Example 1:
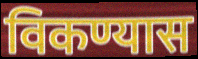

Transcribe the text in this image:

विकण्यास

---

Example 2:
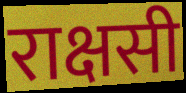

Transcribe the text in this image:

राक्षसी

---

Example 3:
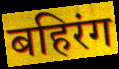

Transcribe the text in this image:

बहिरंग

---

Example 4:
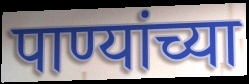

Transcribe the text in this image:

पाण्यांच्या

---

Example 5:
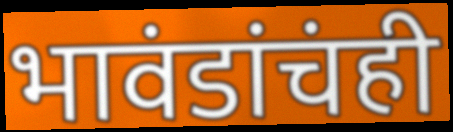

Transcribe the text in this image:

भावंडांचंही